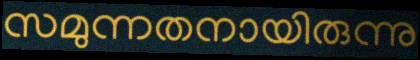
സമുന്നതനായിരുന്നു